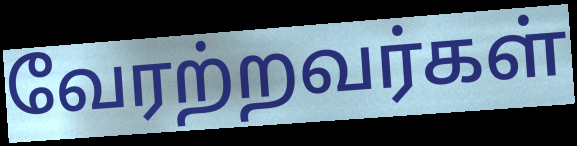
வேரற்றவர்கள்